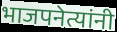
भाजपनेत्यांनी